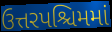
ઉત્તરપશ્ચિમમાં